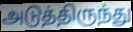
அடுத்திருந்து